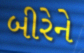
બીરેને